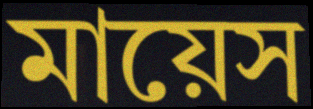
মায়েস